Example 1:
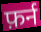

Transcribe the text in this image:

फ़र्न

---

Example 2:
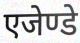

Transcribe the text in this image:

एजेण्डे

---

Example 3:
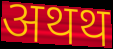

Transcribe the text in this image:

अथथ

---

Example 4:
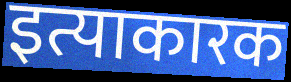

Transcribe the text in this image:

इत्याकारक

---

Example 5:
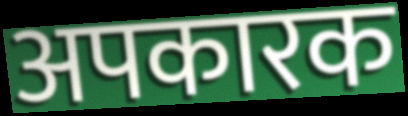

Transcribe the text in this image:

अपकारक